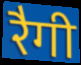
रैगी